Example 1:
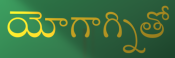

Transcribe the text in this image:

యోగాగ్నితో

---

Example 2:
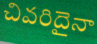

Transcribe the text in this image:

చివరిదైనా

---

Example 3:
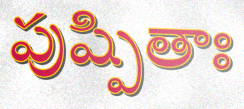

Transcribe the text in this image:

పుష్పితాః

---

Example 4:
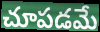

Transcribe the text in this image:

చూపడమే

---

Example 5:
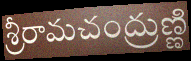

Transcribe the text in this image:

శ్రీరామచంద్రుణ్ణి